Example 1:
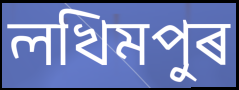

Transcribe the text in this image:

লখিমপুৰ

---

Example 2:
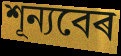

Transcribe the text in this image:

শূন্যবেৰ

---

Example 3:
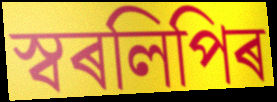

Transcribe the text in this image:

স্বৰলিপিৰ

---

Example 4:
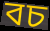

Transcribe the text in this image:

বচ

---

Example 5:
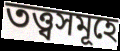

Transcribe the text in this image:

তত্ত্বসমূহে